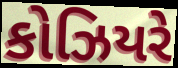
કોઝિયરે